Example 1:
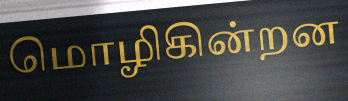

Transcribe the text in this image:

மொழிகின்றன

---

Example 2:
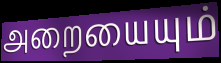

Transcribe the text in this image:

அறையையும்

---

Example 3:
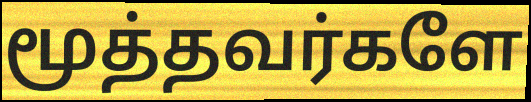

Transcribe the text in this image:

மூத்தவர்களே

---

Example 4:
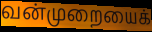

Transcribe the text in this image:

வன்முறையைக்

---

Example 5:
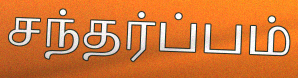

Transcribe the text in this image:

சந்தர்ப்பம்